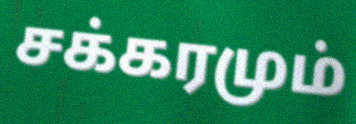
சக்கரமும்